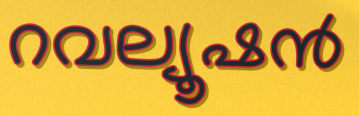
റവല്യൂഷൻ